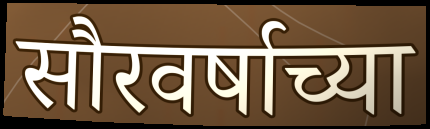
सौरवर्षाच्या